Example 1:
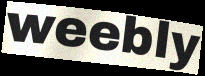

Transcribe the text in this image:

weebly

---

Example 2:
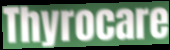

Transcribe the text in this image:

Thyrocare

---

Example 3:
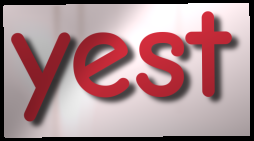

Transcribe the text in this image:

yest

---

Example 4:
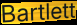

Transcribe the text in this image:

Bartlett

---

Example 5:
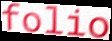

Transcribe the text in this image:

folio